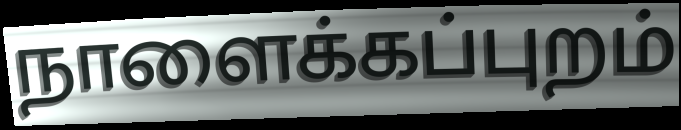
நாளைக்கப்புறம்